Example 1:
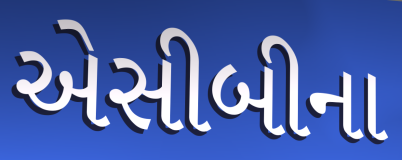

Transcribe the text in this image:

એસીબીના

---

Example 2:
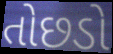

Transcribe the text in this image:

તોછડો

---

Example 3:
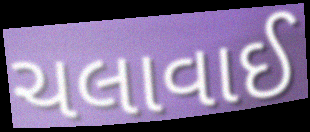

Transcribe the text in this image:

ચલાવાઈ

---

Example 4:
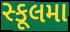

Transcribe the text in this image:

સ્કૂલમા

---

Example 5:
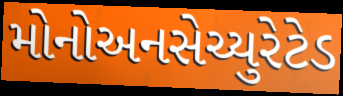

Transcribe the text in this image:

મોનોઅનસેચ્યુરેટેડ